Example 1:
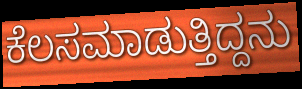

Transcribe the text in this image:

ಕೆಲಸಮಾಡುತ್ತಿದ್ದನು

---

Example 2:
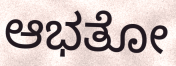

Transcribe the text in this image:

ಆಭತೋ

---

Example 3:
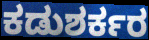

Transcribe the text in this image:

ಕಡುಶರ್ಕರ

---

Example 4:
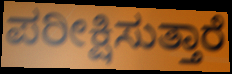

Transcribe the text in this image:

ಪರೀಕ್ಷಿಸುತ್ತಾರೆ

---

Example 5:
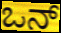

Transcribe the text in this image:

ಒನ್